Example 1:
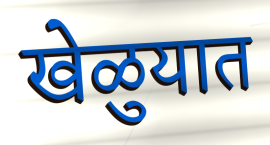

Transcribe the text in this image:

खेळुयात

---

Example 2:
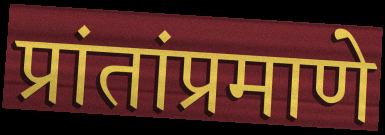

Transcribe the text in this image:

प्रांतांप्रमाणे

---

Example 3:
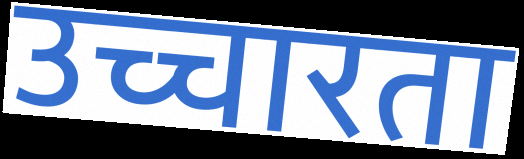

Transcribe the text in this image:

उच्चारता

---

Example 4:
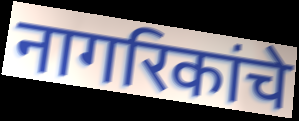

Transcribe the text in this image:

नागरिकांचे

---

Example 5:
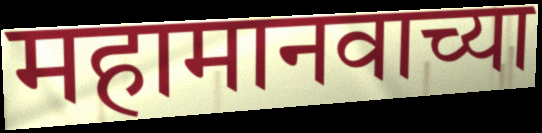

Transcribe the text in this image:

महामानवाच्या